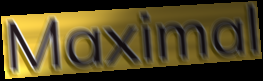
Maximal